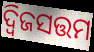
ଦ୍ୱିଜସତ୍ତମ